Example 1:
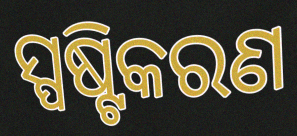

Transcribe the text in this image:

ସ୍ପଷ୍ଟିକରଣ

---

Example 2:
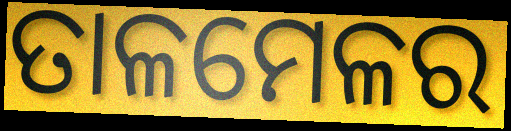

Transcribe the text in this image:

ତାଳମେଳର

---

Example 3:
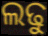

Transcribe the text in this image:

ଲଢୁ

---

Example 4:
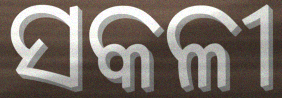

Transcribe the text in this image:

ସକଳୀ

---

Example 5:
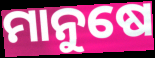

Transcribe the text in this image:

ମାନୁଷେ